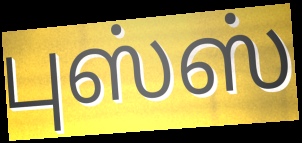
புஸ்ஸ்